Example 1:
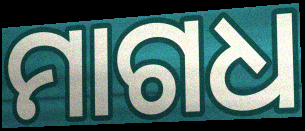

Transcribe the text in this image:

ମାଗଧ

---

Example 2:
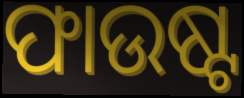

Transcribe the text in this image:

ଫାଉଷ୍ଟ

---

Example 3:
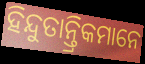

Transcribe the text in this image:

ହିନ୍ଦୁତାନ୍ତ୍ରିକମାନେ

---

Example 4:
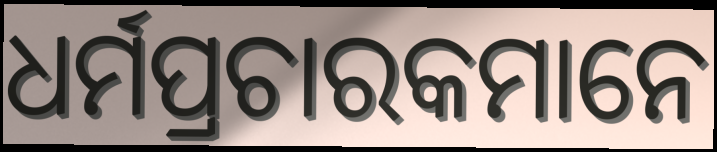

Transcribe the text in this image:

ଧର୍ମପ୍ରଚାରକମାନେ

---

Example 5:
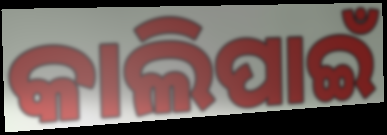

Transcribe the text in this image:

କାଲିପାଇଁ